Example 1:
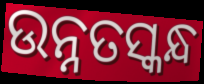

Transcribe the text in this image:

ଉନ୍ନତସ୍କନ୍ଧ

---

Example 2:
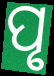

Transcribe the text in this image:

ପୃ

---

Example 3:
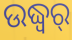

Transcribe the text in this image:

ଉଦ୍ଧ୍ୱର୍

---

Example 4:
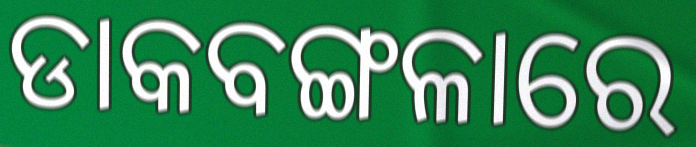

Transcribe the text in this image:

ଡାକବଙ୍ଗଳାରେ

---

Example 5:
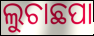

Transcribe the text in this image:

ଲୁଚାଛପା